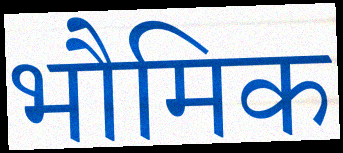
भौमिक